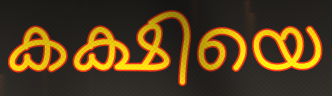
കക്ഷിയെ